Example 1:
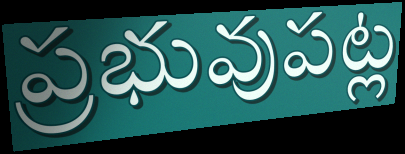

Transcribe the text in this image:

ప్రభువుపట్ల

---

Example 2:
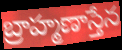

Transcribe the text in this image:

బ్రాహ్మణాస్తేన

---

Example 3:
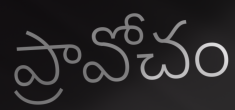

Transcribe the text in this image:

ప్రావోచం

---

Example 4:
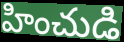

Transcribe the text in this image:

హించుడి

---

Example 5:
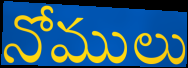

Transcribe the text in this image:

నోములు